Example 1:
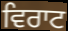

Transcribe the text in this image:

ਵਿਰਾਟ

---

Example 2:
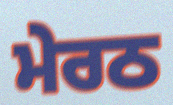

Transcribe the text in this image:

ਮੇਰਠ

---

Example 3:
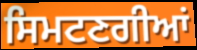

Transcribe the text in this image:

ਸਿਮਟਣਗੀਆਂ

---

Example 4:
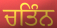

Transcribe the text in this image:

ਚਤਿੰਨ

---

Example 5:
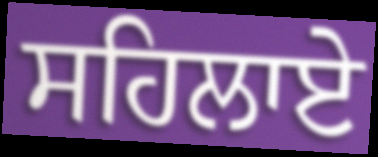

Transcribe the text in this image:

ਸਹਿਲਾਏ